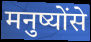
मनुष्योंसे